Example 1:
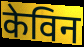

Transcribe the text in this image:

केविन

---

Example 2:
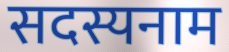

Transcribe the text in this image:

सदस्यनाम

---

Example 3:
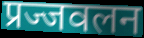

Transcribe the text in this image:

प्रज्‍जवलन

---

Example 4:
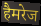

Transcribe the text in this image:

हैमरेज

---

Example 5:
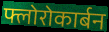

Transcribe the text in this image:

फ्लोरोकार्बन